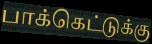
பாக்கெட்டுக்கு